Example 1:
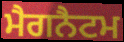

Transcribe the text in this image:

ਮੈਗਨੈਟਮ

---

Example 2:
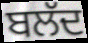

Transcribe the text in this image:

ਬਲੱਦ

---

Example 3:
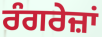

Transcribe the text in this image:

ਰੰਗਰੇਜ਼ਾਂ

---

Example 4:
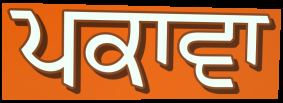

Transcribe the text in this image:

ਪਕਾਵਾ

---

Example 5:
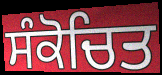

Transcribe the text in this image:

ਸੰਕੋਚਿਤ